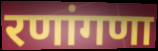
रणांगणा